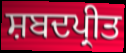
ਸ਼ਬਦਪ੍ਰੀਤ